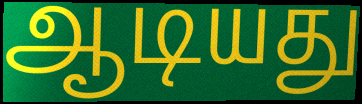
ஆடியது